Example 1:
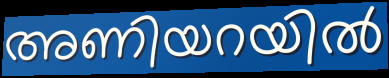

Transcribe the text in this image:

അണിയറയിൽ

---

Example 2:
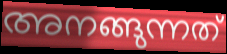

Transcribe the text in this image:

അനങ്ങുന്നത്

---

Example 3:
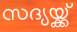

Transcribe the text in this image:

സദ്യയ്ക്ക്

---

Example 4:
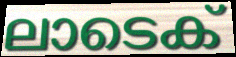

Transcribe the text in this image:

ലാടെക്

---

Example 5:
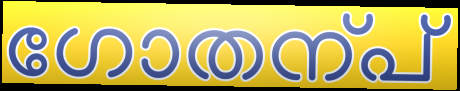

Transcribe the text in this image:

ഗോതന്പ്